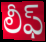
లీఫ్